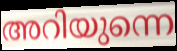
അറിയുന്നെ